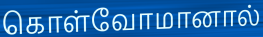
கொள்வோமானால்